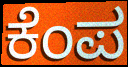
ಕೆಂಪ